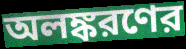
অলঙ্করণের